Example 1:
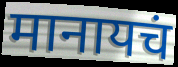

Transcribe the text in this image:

मानायचं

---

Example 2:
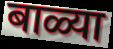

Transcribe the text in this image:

बाळ्या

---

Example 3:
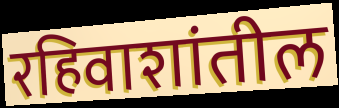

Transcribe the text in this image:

रहिवाशांतील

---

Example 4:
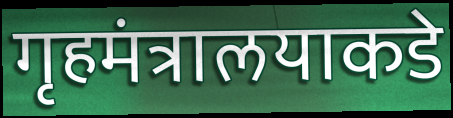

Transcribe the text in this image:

गृहमंत्रालयाकडे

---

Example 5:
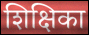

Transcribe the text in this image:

शिक्षिका